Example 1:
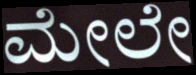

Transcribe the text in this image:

ಮೇಲೇ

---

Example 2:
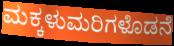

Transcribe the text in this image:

ಮಕ್ಕಳುಮರಿಗಳೊಡನೆ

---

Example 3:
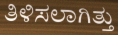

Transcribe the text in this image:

ತಿಳಿಸಲಾಗಿತ್ತು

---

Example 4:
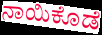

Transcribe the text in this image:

ನಾಯಿಕೊಡೆ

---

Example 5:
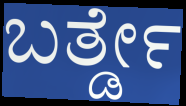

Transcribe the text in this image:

ಬರ್ತ್ಡೇ